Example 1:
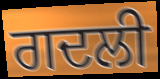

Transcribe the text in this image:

ਗਦਲੀ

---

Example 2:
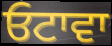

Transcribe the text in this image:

ਓਟਾਵਾ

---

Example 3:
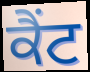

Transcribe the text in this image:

ਕੈਂਟ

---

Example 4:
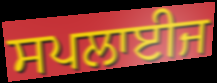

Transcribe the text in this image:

ਸਪਲਾਈਜ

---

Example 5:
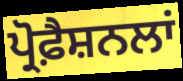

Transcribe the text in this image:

ਪ੍ਰੋਫ਼ੈਸ਼ਨਲਾਂ